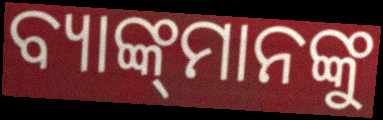
ବ୍ୟାଙ୍କ୍‌ମାନଙ୍କୁ